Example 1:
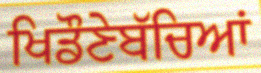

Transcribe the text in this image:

ਖਿਡੌਣੇਬੱਚਿਆਂ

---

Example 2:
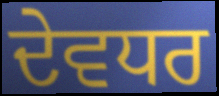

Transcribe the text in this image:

ਦੇਵਧਰ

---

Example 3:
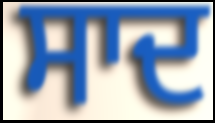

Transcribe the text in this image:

ਸਾਦ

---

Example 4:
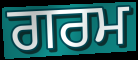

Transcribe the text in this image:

ਗਰਮ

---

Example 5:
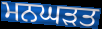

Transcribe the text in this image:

ਮਨਘੜਤ